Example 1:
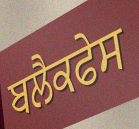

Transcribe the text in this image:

ਬਲੈਕਫੇਸ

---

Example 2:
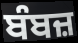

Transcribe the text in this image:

ਬੰਬਜ਼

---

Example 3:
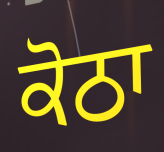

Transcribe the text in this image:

ਕੋਠਾ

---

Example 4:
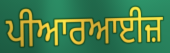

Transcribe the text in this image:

ਪੀਆਰਆਈਜ਼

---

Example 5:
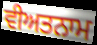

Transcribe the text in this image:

ਵੀਅਤਨਾਮ